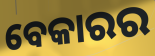
ବେକାରର